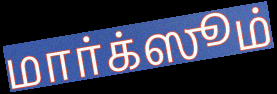
மார்க்ஸூம்